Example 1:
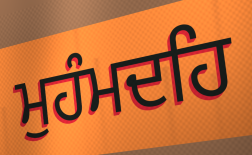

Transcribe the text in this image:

ਮੁਹੰਮਦਹਿ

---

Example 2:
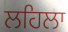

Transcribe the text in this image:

ਲਹਿਲਾ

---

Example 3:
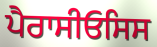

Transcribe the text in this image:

ਪੈਰਾਸੀਓਸਿਸ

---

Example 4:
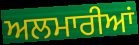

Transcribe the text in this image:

ਅਲਮਾਰੀਆਂ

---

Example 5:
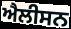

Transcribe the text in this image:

ਐਲੀਸਨ